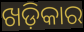
ଖଡ଼ିକାର